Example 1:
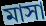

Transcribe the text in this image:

মাসা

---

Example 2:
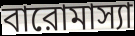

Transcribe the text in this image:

বারোমাস্যা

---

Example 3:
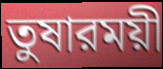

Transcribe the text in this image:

তুষারময়ী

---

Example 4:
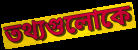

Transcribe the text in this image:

তথ্যগুলোকে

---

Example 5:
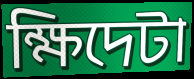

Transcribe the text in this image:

ক্ষিদেটা